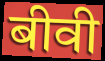
बीवी